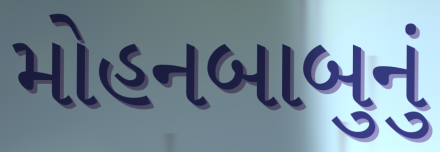
મોહનબાબુનું